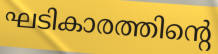
ഘടികാരത്തിന്റെ